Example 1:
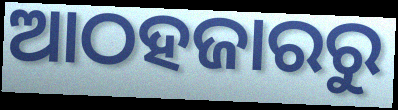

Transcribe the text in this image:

ଆଠହଜାରରୁ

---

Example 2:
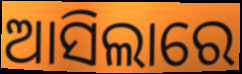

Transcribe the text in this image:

ଆସିଲାରେ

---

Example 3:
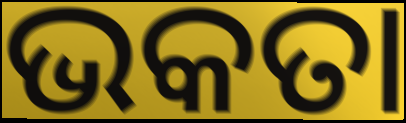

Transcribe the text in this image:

ଭକତା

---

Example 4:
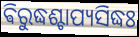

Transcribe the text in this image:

ଵିରୁଦ୍ଧଶ୍ଚାପ୍ଯସିଦ୍ଧଃ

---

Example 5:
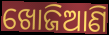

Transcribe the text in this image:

ଖୋଜିଆଣି